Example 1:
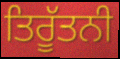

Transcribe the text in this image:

ਤਿਰੂੱਤਨੀ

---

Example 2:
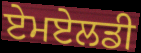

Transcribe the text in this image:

ਏਮਏਲਡੀ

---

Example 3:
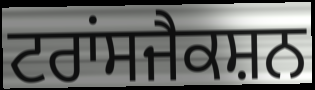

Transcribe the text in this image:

ਟਰਾਂਸਜੈਕਸ਼ਨ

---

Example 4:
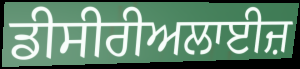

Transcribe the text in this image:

ਡੀਸੀਰੀਅਲਾਈਜ਼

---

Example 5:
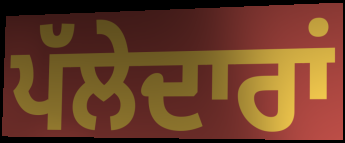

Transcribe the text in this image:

ਪੱਲੇਦਾਰਾਂ